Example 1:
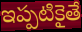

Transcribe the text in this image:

ఇప్పటికైతే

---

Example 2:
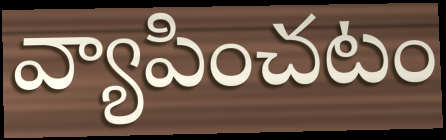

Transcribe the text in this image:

వ్యాపించటం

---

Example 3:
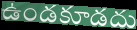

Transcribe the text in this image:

ఉండకూడదు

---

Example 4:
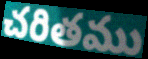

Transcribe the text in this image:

చరితము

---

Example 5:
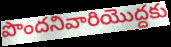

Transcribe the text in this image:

పొందనివారియొద్దకు